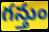
గన్తుం